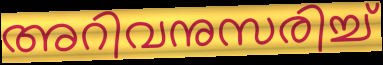
അറിവനുസരിച്ച്